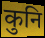
कुनि